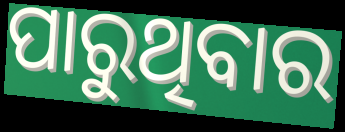
ପାରୁଥିବାର